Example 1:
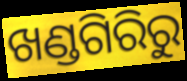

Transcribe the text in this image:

ଖଣ୍ଡଗିରିରୁ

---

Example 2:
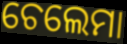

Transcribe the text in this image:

ଚେଲେମା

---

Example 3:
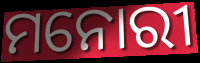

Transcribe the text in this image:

ମନୋରୀ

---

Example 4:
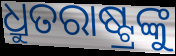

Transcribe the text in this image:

ଧ୍ରୁତରାଷ୍ଟ୍ରଙ୍କୁ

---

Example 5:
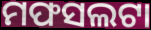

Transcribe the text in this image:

ମଫସଲଟା